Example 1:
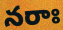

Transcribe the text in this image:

నరాః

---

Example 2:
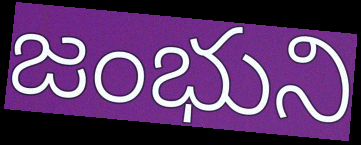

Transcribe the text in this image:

జంభుని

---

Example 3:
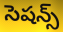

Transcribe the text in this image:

సెషన్స్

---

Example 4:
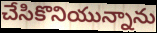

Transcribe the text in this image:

చేసికొనియున్నాను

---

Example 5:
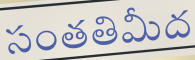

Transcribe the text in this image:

సంతతిమీద